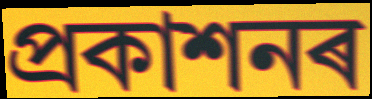
প্ৰকাশনৰ